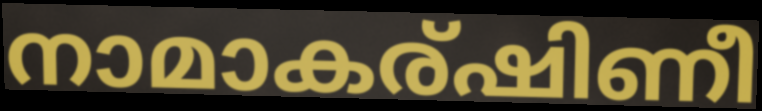
നാമാകര്ഷിണീ